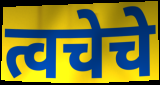
त्वचेचे